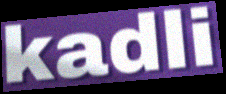
kadli